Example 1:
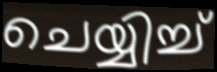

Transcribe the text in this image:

ചെയ്യിച്ച്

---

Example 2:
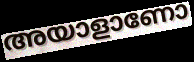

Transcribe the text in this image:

അയാളാണോ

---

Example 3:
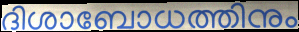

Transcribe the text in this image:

ദിശാബോധത്തിനും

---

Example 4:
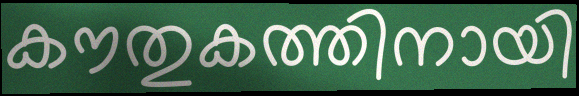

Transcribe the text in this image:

കൗതുകത്തിനായി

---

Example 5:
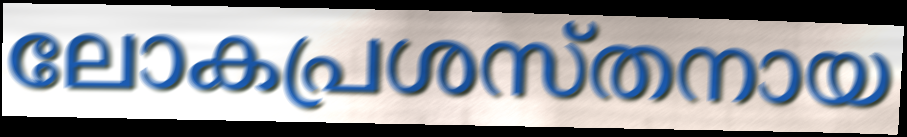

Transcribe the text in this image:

ലോകപ്രശസ്തനായ